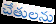
చేతులను